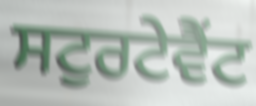
ਸਟੁਰਟੇਵੈਂਟ